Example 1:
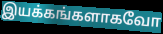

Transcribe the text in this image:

இயக்கங்களாகவோ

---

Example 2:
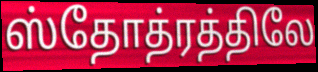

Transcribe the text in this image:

ஸ்தோத்ரத்திலே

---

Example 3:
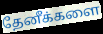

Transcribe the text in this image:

தேனீக்களை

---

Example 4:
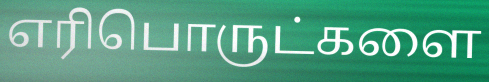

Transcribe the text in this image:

எரிபொருட்களை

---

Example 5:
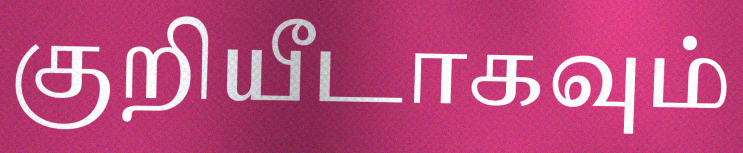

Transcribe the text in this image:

குறியீடாகவும்